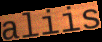
aliis